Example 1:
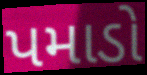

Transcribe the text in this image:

પમાડો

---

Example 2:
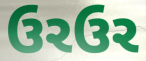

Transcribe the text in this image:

ઉરઉર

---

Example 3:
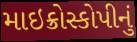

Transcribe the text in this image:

માઇક્રોસ્કોપીનું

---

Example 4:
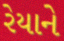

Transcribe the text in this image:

રેયાને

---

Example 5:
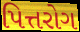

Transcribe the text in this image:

પિત્તરોગ